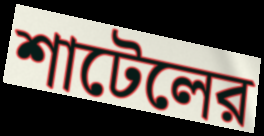
শাটেলের